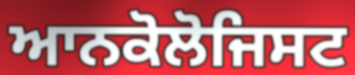
ਆਨਕੋਲੋਜਿਸਟ